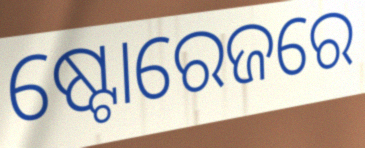
ଷ୍ଟୋରେଜରେ